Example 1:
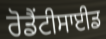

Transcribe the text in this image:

ਰੋਡੈਂਟੀਸਾਈਡ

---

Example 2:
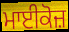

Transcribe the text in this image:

ਮਾਈਕੋਜ਼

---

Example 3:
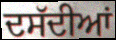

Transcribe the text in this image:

ਦਸੱਦੀਆਂ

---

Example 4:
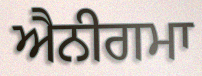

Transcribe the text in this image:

ਐਨੀਗਮਾ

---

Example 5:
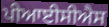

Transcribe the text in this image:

ਪੀਆਈਸੀਐਸ